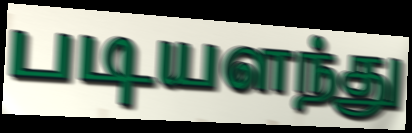
படியளந்து